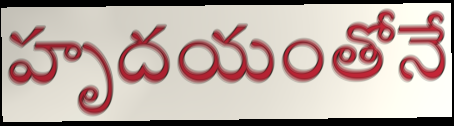
హృదయంతోనే